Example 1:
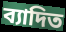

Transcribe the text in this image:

ব্যাদিত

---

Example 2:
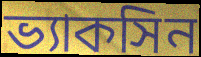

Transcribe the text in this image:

ভ্যাকসিন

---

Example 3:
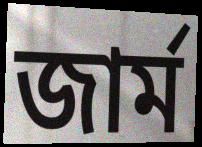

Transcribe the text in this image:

জার্ম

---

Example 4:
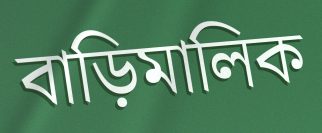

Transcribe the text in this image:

বাড়িমালিক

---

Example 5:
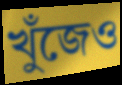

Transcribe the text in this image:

খুঁজেও